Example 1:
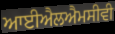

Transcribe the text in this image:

ਆਈਐਲਐਮਸੀਵੀ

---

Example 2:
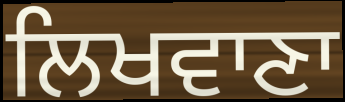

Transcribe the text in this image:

ਲਿਖਵਾਣਾ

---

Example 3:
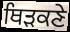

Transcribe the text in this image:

ਥਿੜਕਣੇ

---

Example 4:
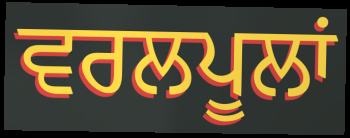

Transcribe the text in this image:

ਵਰਲਪੂਲਾਂ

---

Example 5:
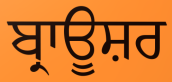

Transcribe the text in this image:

ਬ੍ਰਾਊਸ਼ਰ